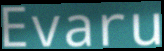
Evaru